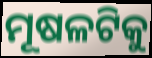
ମୂଷଳଟିକୁ